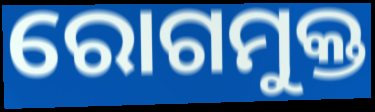
ରୋଗମୁକ୍ତ